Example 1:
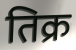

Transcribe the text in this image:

तिक्र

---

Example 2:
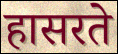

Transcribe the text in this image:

हासरते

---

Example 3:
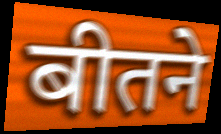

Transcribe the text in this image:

बीतने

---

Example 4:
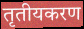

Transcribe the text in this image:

तृतीयकरण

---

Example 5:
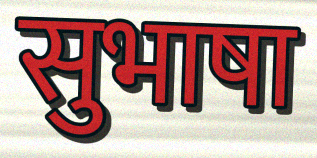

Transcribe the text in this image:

सुभाषा